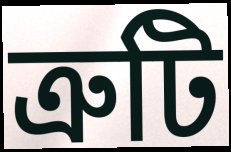
ত্রুটি